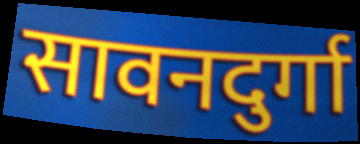
सावनदुर्गा